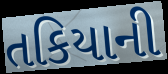
તકિયાની